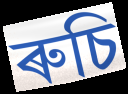
ৰুচি